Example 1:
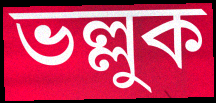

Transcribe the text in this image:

ভল্লুক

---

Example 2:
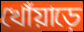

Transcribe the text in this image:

খোঁয়াড়ে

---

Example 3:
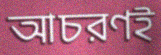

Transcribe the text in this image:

আচরণই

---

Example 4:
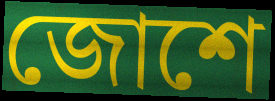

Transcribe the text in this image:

জোশে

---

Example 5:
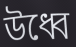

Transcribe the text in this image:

উধ্বে